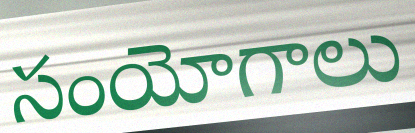
సంయోగాలు